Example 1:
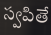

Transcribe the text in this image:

స్వపితే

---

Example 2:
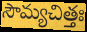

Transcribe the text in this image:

సౌమ్యచిత్తః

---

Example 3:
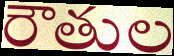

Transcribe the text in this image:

రౌతుల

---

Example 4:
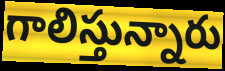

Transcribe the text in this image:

గాలిస్తున్నారు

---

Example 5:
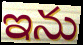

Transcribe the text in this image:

ఇను